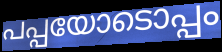
പപ്പയോടൊപ്പം